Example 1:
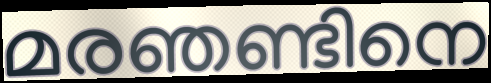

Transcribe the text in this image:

മരഞണ്ടിനെ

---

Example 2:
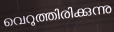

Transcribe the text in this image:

വെറുത്തിരിക്കുന്നു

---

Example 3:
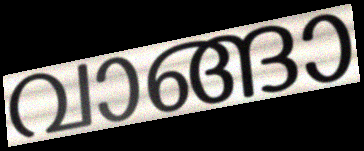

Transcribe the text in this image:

വാങ്ങാ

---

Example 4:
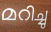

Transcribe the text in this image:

മറിച്ചു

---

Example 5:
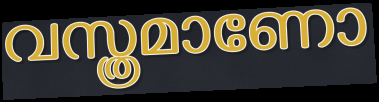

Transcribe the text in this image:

വസ്ത്രമാണോ